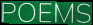
POEMS